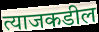
त्याजकडील